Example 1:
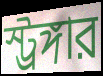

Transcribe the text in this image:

স্ট্রঙ্গার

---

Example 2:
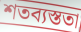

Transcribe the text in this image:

শতব্যস্ততা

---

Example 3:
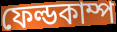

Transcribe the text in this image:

ফেল্ডকাম্প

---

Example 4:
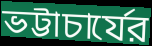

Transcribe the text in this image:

ভট্টাচার্যের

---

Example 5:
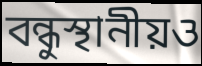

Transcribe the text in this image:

বন্ধুস্থানীয়ও